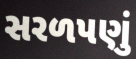
સરળપણું